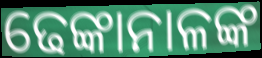
ଢେଙ୍କାନାଳଙ୍କ